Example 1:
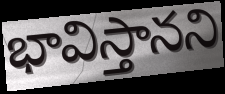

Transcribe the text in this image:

భావిస్తానని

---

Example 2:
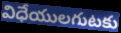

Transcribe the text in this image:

విధేయులగుటకు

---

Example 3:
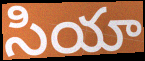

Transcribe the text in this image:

సియా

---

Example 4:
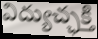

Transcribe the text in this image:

విద్యుచ్ఛక్తి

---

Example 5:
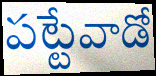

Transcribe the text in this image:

పట్టేవాడో